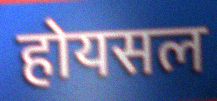
होयसल